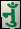
નુઁ